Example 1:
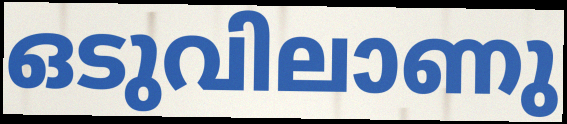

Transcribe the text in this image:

ഒടുവിലാണു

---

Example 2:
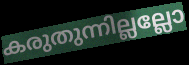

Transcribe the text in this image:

കരുതുന്നില്ലല്ലോ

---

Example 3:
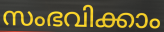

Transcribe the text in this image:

സംഭവിക്കാം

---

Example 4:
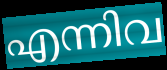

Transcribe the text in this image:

എന്നിവ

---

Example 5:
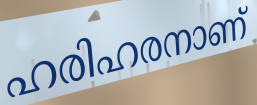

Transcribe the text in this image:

ഹരിഹരനാണ്